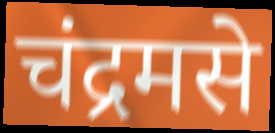
चंद्रमसे